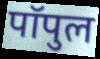
पॉपुल